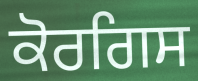
ਕੋਰਗਿਸ